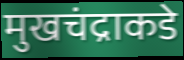
मुखचंद्राकडे